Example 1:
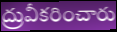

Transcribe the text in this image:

ద్రువీకరించారు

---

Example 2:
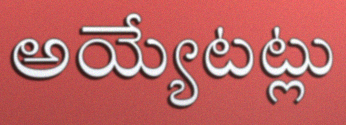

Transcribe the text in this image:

అయ్యేటట్లు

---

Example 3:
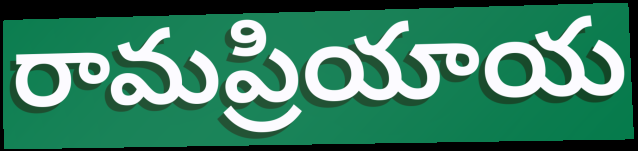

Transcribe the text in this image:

రామప్రియాయ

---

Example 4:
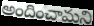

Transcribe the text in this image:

అందించామని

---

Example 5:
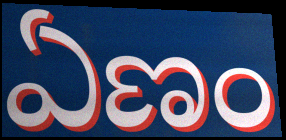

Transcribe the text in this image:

ఏణం